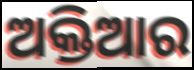
ଅକ୍ତିଆର